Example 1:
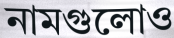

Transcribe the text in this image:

নামগুলোও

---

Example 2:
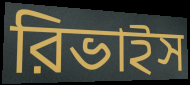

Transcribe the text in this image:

রিভাইস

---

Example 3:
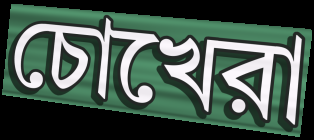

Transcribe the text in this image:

চোখেরা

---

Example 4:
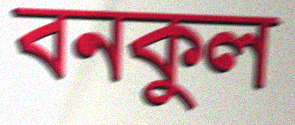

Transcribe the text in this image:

বনকুল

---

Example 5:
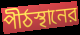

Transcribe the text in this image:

পীঠস্থানের